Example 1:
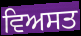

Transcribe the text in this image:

ਵਿਅਸਤ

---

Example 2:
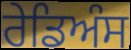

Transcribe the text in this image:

ਰੇਡਿਅੰਸ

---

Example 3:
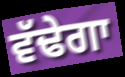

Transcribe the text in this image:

ਵੱਢੇਗਾ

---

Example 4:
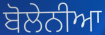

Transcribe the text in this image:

ਬੋਲੇਨੀਆ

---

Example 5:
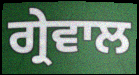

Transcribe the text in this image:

ਗ੍ਰੇਵਾਲ